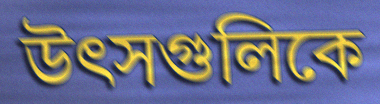
উৎসগুলিকে